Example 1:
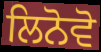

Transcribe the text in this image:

ਲਿਨੋਵੋ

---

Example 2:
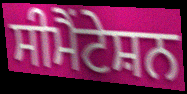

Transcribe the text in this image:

ਸੀਮੈਂਟੇਸ਼ਨ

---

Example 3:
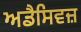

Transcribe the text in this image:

ਅਡੈਸਿਵਜ਼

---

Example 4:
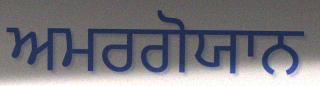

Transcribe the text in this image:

ਅਮਰਗੋਯਾਨ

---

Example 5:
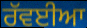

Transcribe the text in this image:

ਰੱਵਈਆ